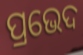
ପ୍ରଭେଦ